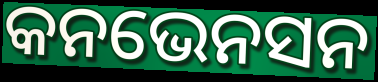
କନଭେନସନ